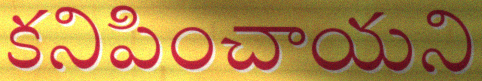
కనిపించాయని